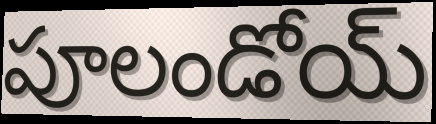
పూలండోయ్